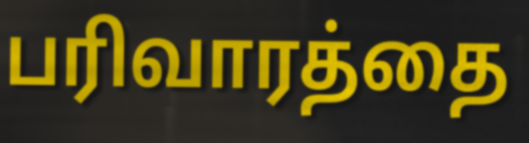
பரிவாரத்தை